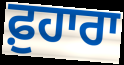
ਫ਼ੁਹਾਰਾ